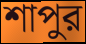
শাপুর